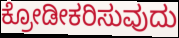
ಕ್ರೋಡೀಕರಿಸುವುದು